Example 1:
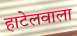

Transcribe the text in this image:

हाटेलवाला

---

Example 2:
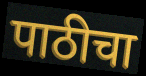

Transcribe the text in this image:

पाठीचा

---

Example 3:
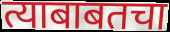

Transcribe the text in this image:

त्याबाबतचा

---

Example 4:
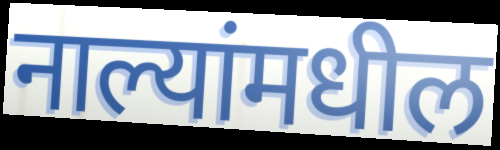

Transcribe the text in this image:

नाल्यांमधील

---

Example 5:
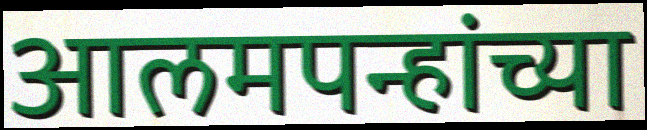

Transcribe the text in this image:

आलमपन्हांच्या